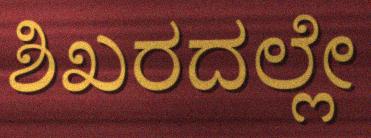
ಶಿಖರದಲ್ಲೇ